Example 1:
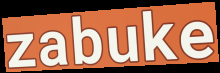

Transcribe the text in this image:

zabuke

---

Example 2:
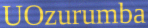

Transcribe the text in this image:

UOzurumba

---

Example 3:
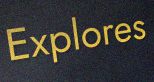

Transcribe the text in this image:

Explores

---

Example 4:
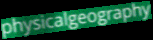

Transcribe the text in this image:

physicalgeography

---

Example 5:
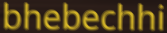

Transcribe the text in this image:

bhebechhi